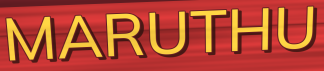
MARUTHU